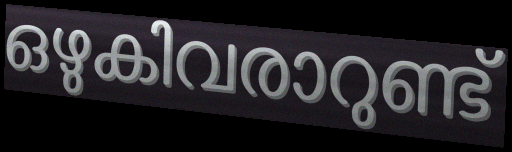
ഒഴുകിവരാറുണ്ട്